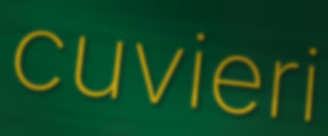
cuvieri